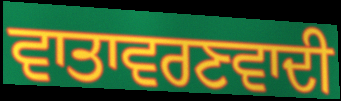
ਵਾਤਾਵਰਣਵਾਦੀ